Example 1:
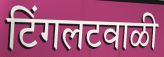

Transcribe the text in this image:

टिंगलटवाळी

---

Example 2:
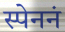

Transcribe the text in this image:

स्पेननं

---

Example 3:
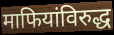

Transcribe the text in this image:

माफियांविरुद्ध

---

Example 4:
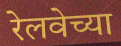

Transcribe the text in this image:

रेलवेच्या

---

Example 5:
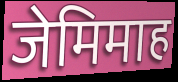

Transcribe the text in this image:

जेमिमाह